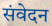
संवेदन